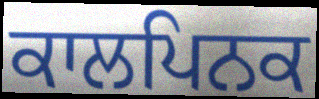
ਕਾਲਪਿਨਕ